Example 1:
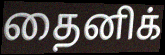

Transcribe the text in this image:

தைனிக்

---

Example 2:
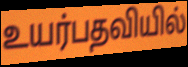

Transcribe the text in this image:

உயர்பதவியில்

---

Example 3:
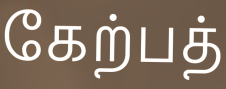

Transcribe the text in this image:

கேற்பத்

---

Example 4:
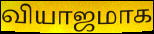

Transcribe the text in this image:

வியாஜமாக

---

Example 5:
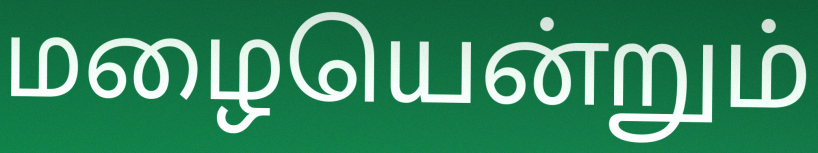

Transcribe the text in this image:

மழையென்றும்